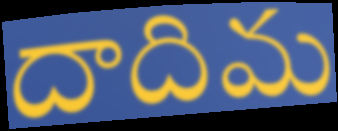
దాదిమ